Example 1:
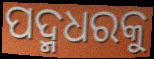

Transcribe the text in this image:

ପଦ୍ମଧରକୁ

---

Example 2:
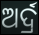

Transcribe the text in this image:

ଅର୍ଦ୍ର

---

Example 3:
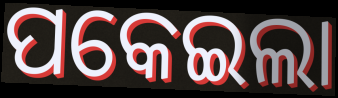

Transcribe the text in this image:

ପକେଇଲା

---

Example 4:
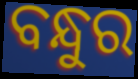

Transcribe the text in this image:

ବନ୍ଧୁର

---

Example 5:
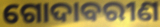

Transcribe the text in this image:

ଗୋଦାବରୀଣ